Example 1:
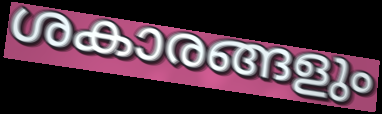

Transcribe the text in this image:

ശകാരങ്ങളും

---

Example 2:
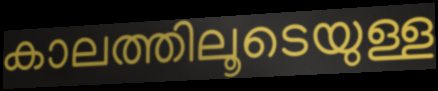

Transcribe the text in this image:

കാലത്തിലൂടെയുള്ള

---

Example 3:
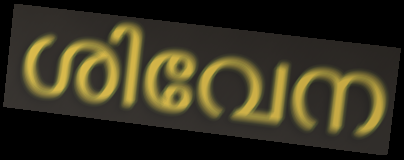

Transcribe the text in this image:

ശിവേന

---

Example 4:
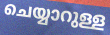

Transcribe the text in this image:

ചെയ്യാറുള്ള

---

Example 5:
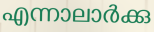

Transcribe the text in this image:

എന്നാലാർക്കു